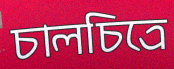
চালচিত্রে